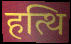
हत्थि